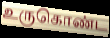
உருகொண்ட